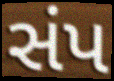
સંપ